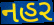
નહર